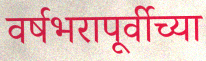
वर्षभरापूर्वीच्या